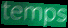
temps